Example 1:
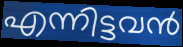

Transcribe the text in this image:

എന്നിട്ടവൻ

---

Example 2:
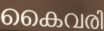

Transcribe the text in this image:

കൈവരി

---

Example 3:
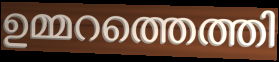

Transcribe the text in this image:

ഉമ്മറത്തെത്തി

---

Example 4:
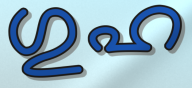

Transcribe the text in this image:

ഗുഹ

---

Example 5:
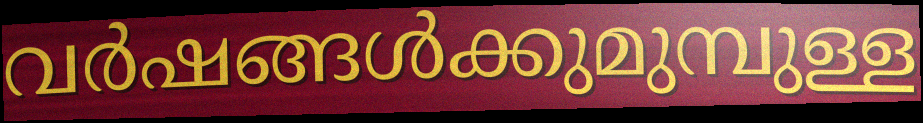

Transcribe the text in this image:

വർഷങ്ങൾക്കുമുമ്പുള്ള